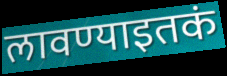
लावण्याइतकं